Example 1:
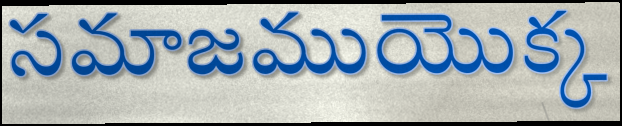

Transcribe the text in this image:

సమాజముయొక్క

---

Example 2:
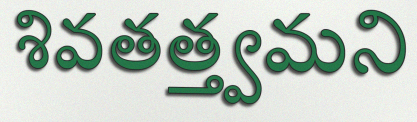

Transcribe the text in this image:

శివతత్త్వమని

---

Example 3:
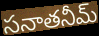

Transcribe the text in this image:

సనాతనీమ్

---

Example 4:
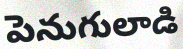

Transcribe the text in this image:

పెనుగులాడి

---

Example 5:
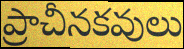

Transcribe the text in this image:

ప్రాచీనకవులు